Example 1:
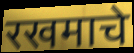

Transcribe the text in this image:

रखमाचे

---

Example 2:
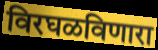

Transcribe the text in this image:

विरघळविणारा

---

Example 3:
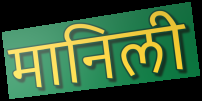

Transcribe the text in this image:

मानिली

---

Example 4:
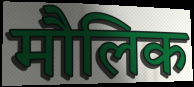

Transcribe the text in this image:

मौलिक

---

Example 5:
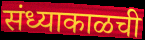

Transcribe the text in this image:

संध्याकाळची